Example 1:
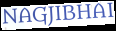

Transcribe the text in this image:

NAGJIBHAI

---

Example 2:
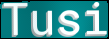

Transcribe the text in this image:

Tusi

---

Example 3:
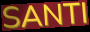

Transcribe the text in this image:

SANTI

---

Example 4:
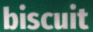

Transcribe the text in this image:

biscuit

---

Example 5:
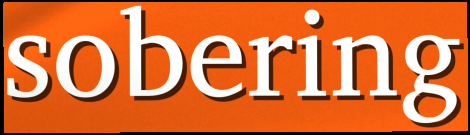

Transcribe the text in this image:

sobering